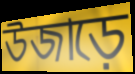
উজাড়ে